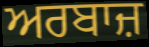
ਅਰਬਾਜ਼